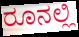
ರೂನಲ್ಲಿ